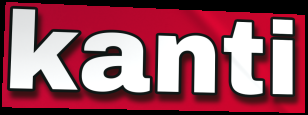
kanti